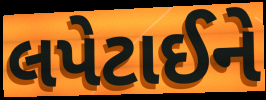
લપેટાઈને